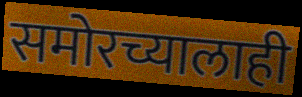
समोरच्यालाही